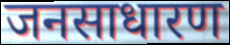
जनसाधारण